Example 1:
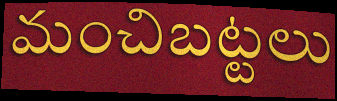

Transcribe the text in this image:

మంచిబట్టలు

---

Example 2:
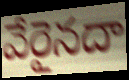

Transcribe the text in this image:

వేరైనదా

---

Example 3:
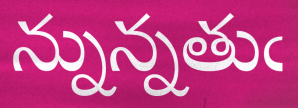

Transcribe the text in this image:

న్నున్నతుఁ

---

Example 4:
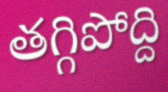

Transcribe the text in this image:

తగ్గిపోద్ది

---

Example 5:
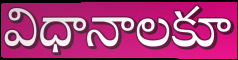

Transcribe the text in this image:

విధానాలకూ